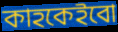
কাহকেইবো